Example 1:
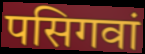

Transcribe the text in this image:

पसिगवां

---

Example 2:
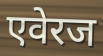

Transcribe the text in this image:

एवेरज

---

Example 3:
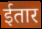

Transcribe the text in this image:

ईतार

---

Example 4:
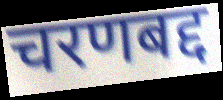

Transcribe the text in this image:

चरणबद्द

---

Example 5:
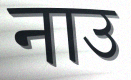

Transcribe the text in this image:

नाउ